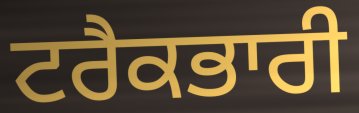
ਟਰੈਕਭਾਰੀ